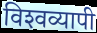
विश्‍वव्यापी